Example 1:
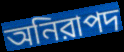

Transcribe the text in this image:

অনিরাপদ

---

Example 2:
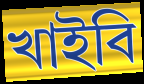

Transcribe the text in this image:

খাইবি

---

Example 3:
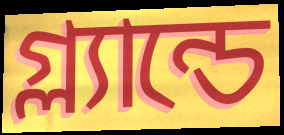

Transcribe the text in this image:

গ্ল্যান্ডে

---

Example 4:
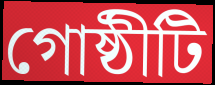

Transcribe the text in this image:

গোষ্ঠীটি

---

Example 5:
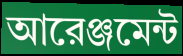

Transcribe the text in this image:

আরেঞ্জমেন্ট